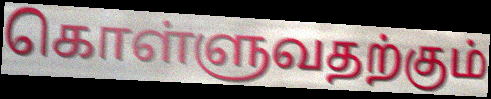
கொள்ளுவதற்கும்